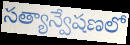
సత్యాన్వేషణలో